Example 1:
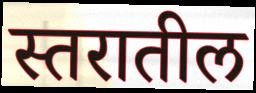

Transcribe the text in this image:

स्तरातील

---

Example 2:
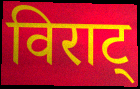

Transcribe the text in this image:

विराट्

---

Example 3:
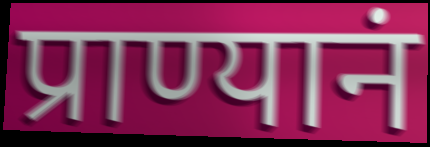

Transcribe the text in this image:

प्राण्यानं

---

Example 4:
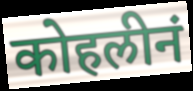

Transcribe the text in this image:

कोहलीनं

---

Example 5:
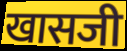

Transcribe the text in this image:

खासजी